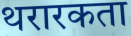
थरारकता